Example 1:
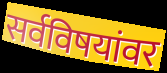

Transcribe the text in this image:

सर्वविषयांवर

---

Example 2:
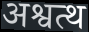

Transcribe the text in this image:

अश्वत्थ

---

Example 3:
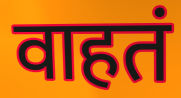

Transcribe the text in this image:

वाहतं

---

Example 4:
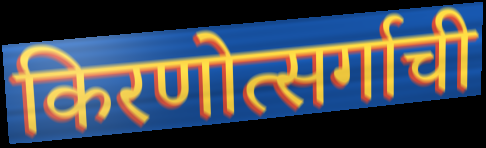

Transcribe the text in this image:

किरणोत्सर्गाची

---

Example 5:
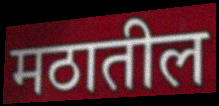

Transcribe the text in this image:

मठातील